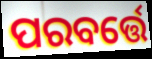
ପରବର୍ତ୍ତେ